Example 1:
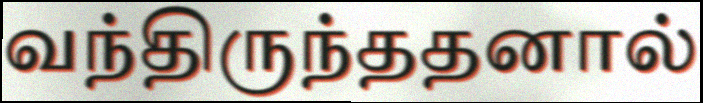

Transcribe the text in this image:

வந்திருந்ததனால்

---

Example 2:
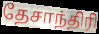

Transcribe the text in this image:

தேசாந்திரி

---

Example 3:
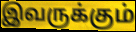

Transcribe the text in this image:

இவருக்கும்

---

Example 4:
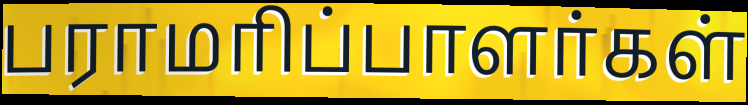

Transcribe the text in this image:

பராமரிப்பாளர்கள்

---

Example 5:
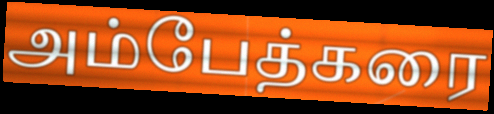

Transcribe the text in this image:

அம்பேத்கரை